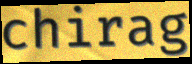
chirag